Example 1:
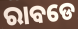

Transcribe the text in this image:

ରାବଡେ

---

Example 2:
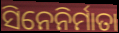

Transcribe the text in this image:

ସିନେନିର୍ମାତା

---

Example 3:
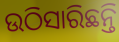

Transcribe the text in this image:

ଉଠିସାରିଛନ୍ତି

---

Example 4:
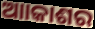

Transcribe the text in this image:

ଆାକାଶର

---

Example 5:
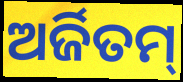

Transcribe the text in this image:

ଅର୍ଜିତମ୍